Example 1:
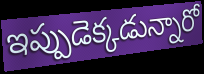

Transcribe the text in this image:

ఇప్పుడెక్కడున్నారో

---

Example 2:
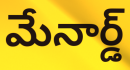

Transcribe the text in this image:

మేనార్డ్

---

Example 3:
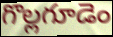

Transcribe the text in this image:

గొల్లగూడెం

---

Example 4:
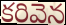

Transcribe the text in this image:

కరివెన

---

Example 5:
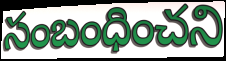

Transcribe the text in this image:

సంబంధించని